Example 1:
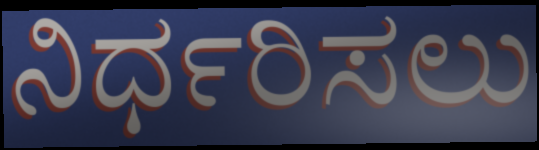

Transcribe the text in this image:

ನಿರ್ಧರಿಸಲು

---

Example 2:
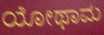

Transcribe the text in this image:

ಯೋಥಾಮ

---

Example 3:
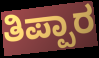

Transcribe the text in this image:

ತಿಪ್ಪಾರ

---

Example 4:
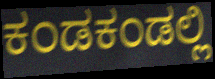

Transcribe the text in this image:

ಕಂಡಕಂಡಲ್ಲಿ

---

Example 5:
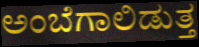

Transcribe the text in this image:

ಅಂಬೆಗಾಲಿಡುತ್ತ